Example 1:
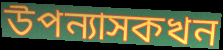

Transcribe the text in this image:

উপন্যাসকখন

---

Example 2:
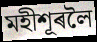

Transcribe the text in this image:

মহীশূৰলৈ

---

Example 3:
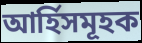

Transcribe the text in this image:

আৰ্হিসমূহক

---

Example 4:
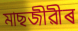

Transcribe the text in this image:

মাছজীৱীৰ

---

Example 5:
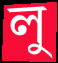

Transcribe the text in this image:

লু